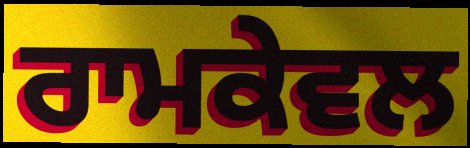
ਰਾਮਕੇਵਲ